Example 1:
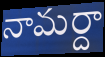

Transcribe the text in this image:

నామర్దా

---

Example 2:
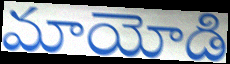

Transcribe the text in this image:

మాయోడి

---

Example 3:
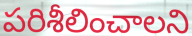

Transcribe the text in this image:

పరిశీలించాలని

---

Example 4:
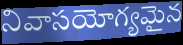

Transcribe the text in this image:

నివాసయోగ్యమైన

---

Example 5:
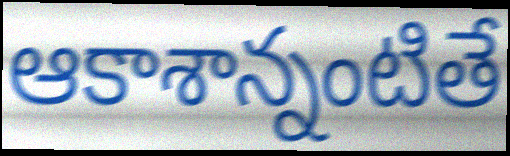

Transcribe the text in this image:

ఆకాశాన్నంటితే